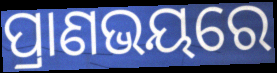
ପ୍ରାଣଭୟରେ